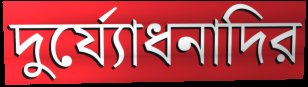
দুর্য্যোধনাদির